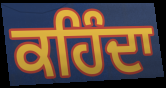
ਕਹਿੰਦਾ